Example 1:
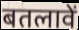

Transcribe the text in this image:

बतलावें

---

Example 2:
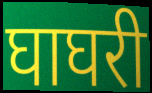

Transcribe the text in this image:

घाघरी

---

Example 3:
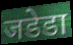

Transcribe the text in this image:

जडेडा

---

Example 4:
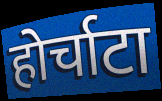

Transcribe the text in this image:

होर्चाटा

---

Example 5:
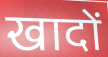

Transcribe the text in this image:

खादों